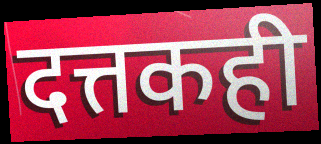
दत्तकही